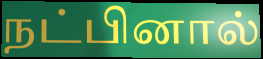
நட்பினால்